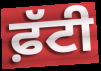
ਫ਼ੱਟੀ